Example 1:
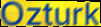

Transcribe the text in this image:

Ozturk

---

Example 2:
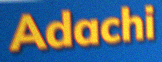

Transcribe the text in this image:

Adachi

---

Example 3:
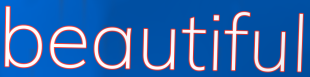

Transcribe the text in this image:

beautiful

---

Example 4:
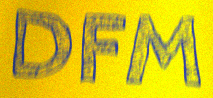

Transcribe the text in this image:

DFM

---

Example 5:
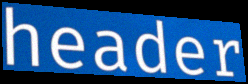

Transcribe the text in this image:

header